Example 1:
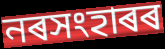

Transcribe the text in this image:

নৰসংহাৰৰ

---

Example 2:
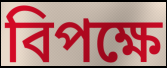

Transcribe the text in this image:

বিপক্ষে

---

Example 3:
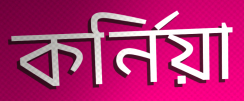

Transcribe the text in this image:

কৰ্নিয়া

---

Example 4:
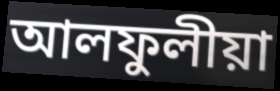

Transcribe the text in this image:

আলফুলীয়া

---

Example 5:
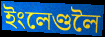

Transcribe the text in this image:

ইংলেণ্ডলৈ